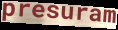
presuram